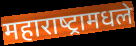
महाराष्ट्रामधले